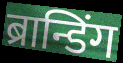
ब्रान्डिंग